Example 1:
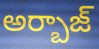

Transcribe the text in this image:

అర్బాజ్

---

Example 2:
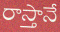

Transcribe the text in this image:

రాస్తానే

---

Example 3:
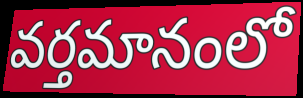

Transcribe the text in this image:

వర్తమానంలో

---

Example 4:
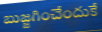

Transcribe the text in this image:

బుజ్జగించేందుకే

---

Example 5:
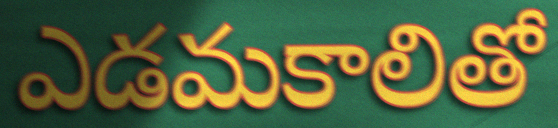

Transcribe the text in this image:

ఎడమకాలితో